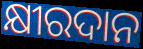
କ୍ଷୀରଦାନ